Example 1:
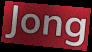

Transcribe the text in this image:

Jong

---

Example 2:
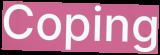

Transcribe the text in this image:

Coping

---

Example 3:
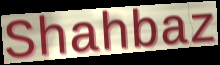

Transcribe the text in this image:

Shahbaz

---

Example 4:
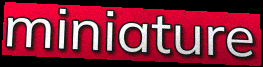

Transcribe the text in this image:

miniature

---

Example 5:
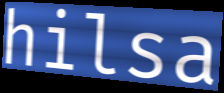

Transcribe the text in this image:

hilsa